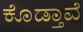
ಕೊಡ್ತಾವೆ